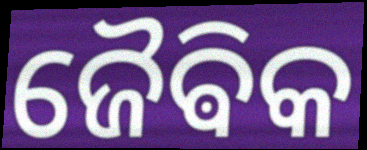
ଜୈଵିକ